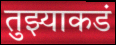
तुझ्याकडं